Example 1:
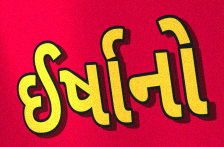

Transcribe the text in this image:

ઈર્ષાનો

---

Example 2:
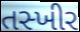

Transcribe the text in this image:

તસ્ખીર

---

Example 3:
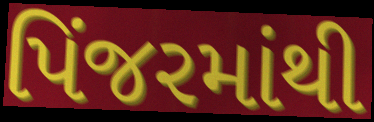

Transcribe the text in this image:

પિંજરમાંથી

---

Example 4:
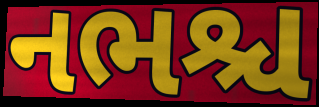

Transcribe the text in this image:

નભશ્ચ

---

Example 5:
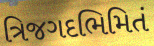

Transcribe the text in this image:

ત્રિજગદભિમિતં